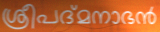
ശ്രീപദ്മനാഭൻ